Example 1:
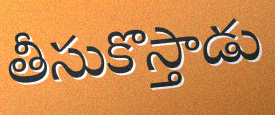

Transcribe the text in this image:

తీసుకొస్తాడు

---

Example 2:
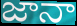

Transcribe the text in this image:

జానా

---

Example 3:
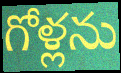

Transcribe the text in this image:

గోళ్లను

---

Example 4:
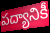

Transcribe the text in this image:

పద్యానికీ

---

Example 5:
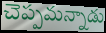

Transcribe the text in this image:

చెప్పమన్నాడు